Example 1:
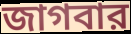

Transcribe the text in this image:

জাগবার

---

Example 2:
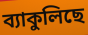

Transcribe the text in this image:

ব্যাকুলিছে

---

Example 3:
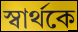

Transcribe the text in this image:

স্বার্থকে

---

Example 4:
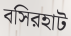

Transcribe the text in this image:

বসিরহাট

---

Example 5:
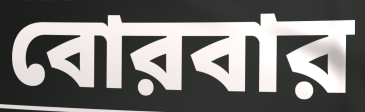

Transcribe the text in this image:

বোরবার